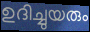
ഉദിച്ചുയരും